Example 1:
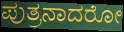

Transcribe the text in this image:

ಪುತ್ರನಾದರೋ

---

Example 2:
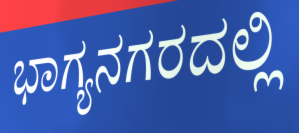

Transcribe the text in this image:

ಭಾಗ್ಯನಗರದಲ್ಲಿ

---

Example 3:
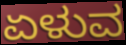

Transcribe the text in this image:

ಏಳುವ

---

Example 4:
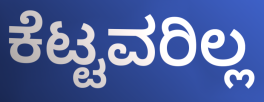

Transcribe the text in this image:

ಕೆಟ್ಟವರಿಲ್ಲ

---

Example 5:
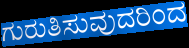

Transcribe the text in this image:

ಗುರುತಿಸುವುದರಿಂದ